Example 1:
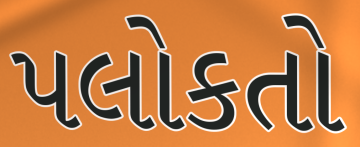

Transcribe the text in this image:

પલોકતો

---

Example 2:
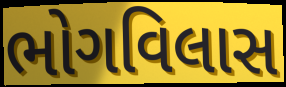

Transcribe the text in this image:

ભોગવિલાસ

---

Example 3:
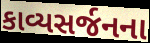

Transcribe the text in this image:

કાવ્યસર્જનના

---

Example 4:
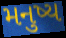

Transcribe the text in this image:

મનુષ્ય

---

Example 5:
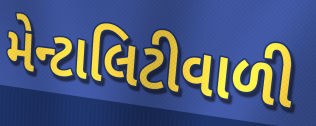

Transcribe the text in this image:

મેન્ટાલિટીવાળી